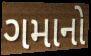
ગમાનો